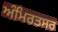
ਅੰਮਿਰਤਸਰ